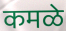
कमळे